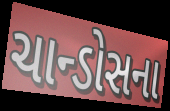
ચાન્ડોસના